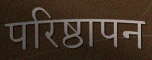
परिष्ठापन